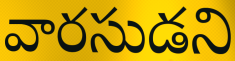
వారసుడని